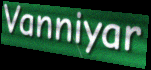
Vanniyar